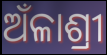
ଅଁଳାଶ୍ରୀ